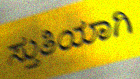
ಸ್ತುತಿಯಾಗಿ